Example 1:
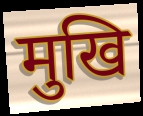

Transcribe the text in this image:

मुखि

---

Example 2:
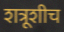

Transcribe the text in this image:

शत्रूशीच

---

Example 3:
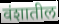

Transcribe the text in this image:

वंशातील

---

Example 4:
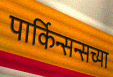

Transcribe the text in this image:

पार्किन्सन्सच्या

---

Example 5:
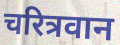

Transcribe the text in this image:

चरित्रवान